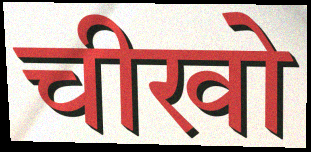
चीखो